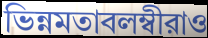
ভিন্নমতাবলম্বীরাও